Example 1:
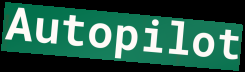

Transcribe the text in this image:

Autopilot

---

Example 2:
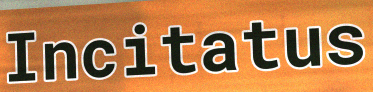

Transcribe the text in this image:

Incitatus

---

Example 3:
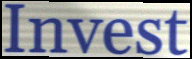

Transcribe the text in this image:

Invest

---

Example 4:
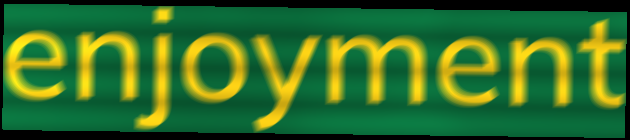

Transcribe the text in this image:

enjoyment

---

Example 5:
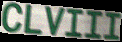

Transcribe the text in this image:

CLVIII